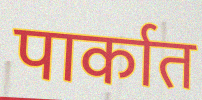
पार्कात